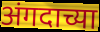
अंगदाच्या